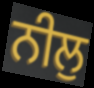
ਨੀਲੁ